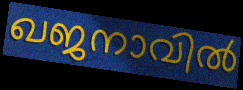
ഖജനാവിൽ